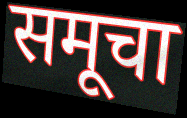
समूचा